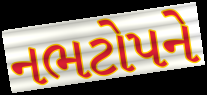
નભટોપને